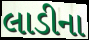
લાડીના